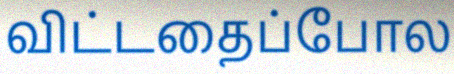
விட்டதைப்போல